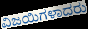
ವಿಜಯಿಗಳಾದರು